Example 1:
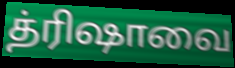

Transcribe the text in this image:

த்ரிஷாவை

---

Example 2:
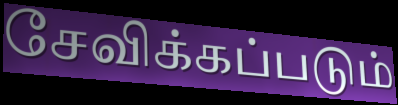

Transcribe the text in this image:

சேவிக்கப்படும்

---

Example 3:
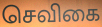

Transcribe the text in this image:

செவிகை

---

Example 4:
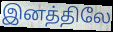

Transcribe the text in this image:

இனத்திலே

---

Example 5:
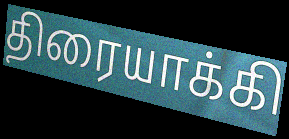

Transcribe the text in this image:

திரையாக்கி